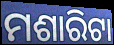
ମଶାରିଟା